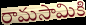
రామసామికి